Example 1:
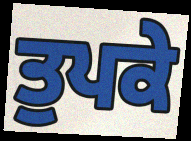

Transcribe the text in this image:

ਤੁਪਕੇ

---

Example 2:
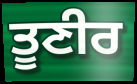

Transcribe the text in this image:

ਤੂਣੀਰ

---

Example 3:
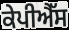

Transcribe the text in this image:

ਕੇਪੀਐੱਸ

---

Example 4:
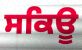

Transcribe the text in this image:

ਸਕਿਊ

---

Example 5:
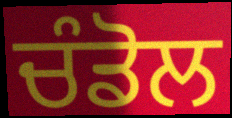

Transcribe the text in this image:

ਚੰਡੋਲ